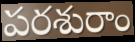
పరశురాం